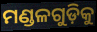
ମଣ୍ଡଳଗୁଡ଼ିକୁ